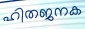
ഹിതജനക